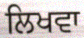
ਲਿਖਵਾ